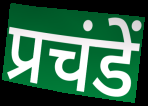
प्रचंडें